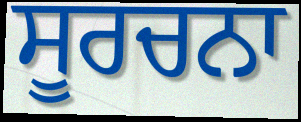
ਸੂਰਚਨਾ